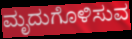
ಮೃದುಗೊಳಿಸುವ